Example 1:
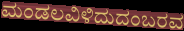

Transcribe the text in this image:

ಮಂಡಲವಿಳಿದುದಂಬರವ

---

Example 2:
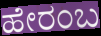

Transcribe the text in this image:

ಹೇರಂಬ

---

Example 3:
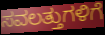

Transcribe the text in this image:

ಸವಲತ್ತುಗಳಿಗೆ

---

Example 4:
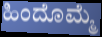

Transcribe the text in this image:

ಹಿಂದೊಮ್ಮೆ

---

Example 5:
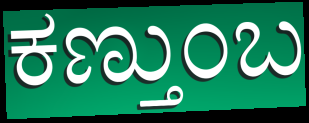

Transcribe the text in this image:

ಕಣ್ತುಂಬ